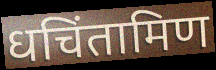
धचिंतामिण